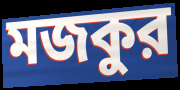
মজকুর